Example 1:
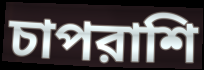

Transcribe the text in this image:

চাপরাশি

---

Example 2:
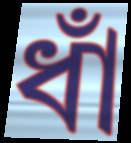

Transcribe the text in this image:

ধাঁ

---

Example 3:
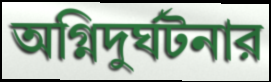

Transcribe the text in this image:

অগ্নিদুর্ঘটনার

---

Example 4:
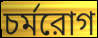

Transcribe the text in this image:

চর্মরোগ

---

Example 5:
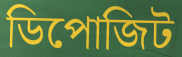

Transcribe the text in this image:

ডিপোজিট